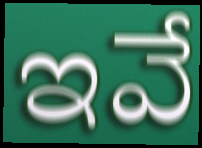
ఇవే